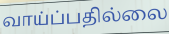
வாய்ப்பதில்லை